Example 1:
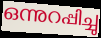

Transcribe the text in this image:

ഒന്നുറപ്പിച്ചു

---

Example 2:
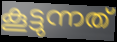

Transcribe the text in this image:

കൂട്ടുന്നത്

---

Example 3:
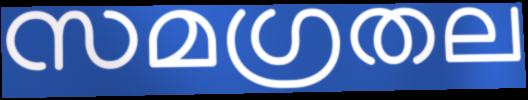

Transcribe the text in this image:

സമഗ്രതല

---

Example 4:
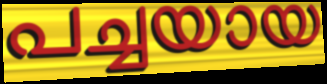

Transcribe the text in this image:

പച്ചയായ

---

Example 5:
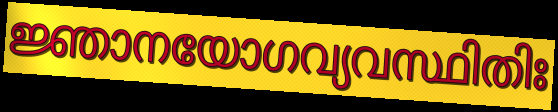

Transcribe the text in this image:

ജ്ഞാനയോഗവ്യവസ്ഥിതിഃ